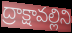
ద్రాక్షావల్లిని